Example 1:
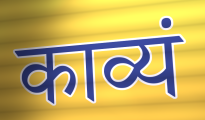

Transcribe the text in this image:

काव्यं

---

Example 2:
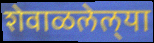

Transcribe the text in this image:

शेवाळलेल्या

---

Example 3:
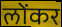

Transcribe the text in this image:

लोंकर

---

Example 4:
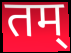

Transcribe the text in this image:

तम्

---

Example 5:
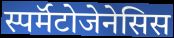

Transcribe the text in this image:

स्पर्मॅटोजेनेसिस